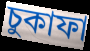
চুকাফা